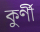
কুর্ণী